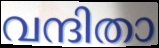
വന്ദിതാ